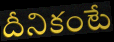
దీనికంటే